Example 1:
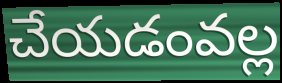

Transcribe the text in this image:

చేయడంవల్ల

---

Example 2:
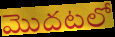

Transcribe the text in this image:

మొదటలో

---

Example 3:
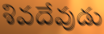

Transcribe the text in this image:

శివదేవుడు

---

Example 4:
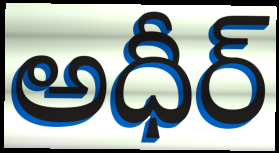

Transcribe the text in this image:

అధీర్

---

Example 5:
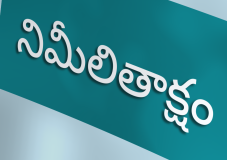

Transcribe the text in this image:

నిమీలితాక్షం